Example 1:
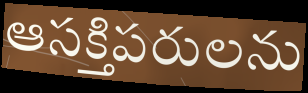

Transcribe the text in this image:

ఆసక్తిపరులను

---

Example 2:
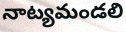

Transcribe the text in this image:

నాట్యమండలి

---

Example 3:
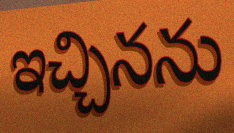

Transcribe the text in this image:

ఇచ్చినను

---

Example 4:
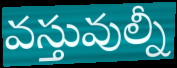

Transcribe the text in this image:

వస్తువుల్నీ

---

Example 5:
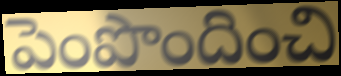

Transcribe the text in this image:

పెంపొందించి